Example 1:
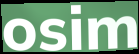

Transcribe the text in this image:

osim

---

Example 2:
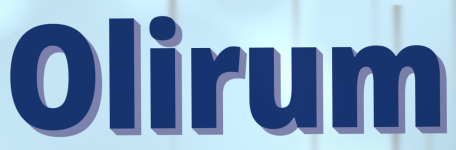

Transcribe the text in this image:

Olirum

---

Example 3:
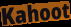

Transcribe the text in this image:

Kahoot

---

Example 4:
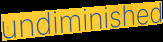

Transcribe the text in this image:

undiminished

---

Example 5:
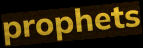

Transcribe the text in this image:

prophets